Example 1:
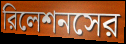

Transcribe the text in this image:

রিলেশনসের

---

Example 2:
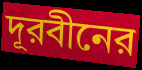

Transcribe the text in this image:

দূরবীনের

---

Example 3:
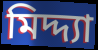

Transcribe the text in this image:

মিদ্দ্যা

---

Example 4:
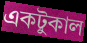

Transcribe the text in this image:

একটুকাল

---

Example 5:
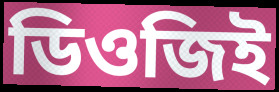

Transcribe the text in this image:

ডিওজিই